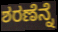
ಶರಣೆನ್ನೆ